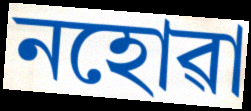
নহোৱা